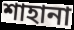
শাহানা